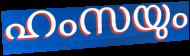
ഹംസയും